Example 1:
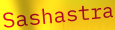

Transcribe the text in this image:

Sashastra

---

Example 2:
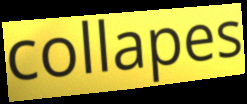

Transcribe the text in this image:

collapes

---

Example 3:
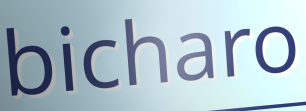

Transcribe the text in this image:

bicharo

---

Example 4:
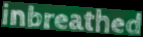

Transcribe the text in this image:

inbreathed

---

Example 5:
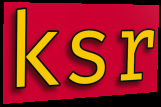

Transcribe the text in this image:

ksr